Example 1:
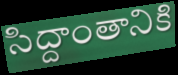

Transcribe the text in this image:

సిద్దాంతానికి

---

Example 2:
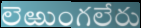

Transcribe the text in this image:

లెఱుంగలేరు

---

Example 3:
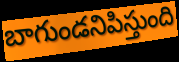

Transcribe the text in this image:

బాగుండనిపిస్తుంది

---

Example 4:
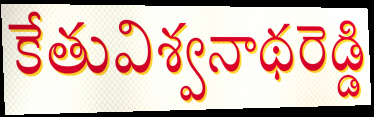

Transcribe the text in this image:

కేతువిశ్వనాథరెడ్డి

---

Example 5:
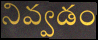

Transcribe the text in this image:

నివ్వడం